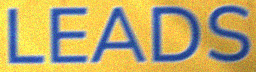
LEADS